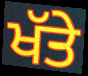
ਖੱਤੇ